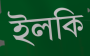
ইলকি